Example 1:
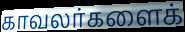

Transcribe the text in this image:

காவலர்களைக்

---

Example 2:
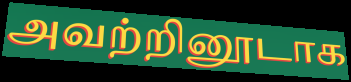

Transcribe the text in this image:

அவற்றினூடாக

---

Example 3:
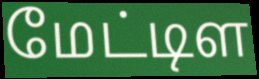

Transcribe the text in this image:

மேட்டிள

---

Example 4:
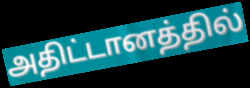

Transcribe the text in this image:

அதிட்டானத்தில்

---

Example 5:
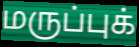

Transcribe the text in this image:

மருப்புக்